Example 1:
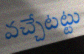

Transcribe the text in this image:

వచ్చేటట్టు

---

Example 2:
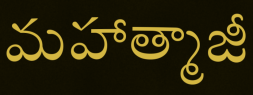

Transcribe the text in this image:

మహాత్మాజీ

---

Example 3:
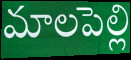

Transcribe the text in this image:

మాలపెల్లి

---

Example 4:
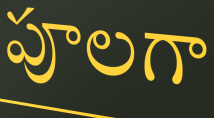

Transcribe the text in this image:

పూలగా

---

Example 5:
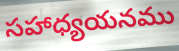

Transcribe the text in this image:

సహాధ్యయనము